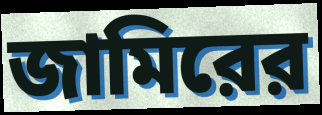
জামিরের